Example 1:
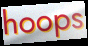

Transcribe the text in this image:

hoops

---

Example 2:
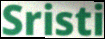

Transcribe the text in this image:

Sristi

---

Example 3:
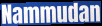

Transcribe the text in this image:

Nammudan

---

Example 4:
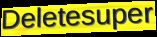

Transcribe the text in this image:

Deletesuper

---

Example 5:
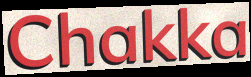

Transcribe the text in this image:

Chakka